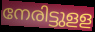
നേരിട്ടുളള